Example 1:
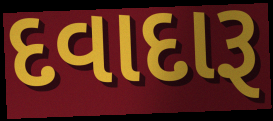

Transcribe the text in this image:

દવાદારૂ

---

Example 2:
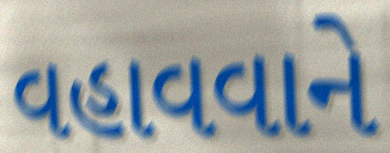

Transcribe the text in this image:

વહાવવાને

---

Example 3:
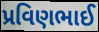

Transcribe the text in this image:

પ્રવિણભાઈ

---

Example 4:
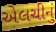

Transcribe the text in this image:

એલચીનું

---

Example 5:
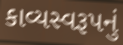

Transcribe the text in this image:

કાવ્યસ્વરૂપનું